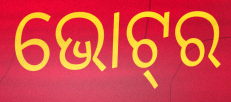
ଭୋଟ୍‍ର